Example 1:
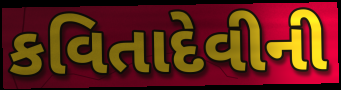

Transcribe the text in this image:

કવિતાદેવીની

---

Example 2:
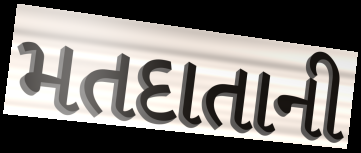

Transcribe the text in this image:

મતદાતાની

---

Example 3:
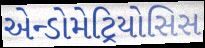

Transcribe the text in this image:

એન્ડોમેટ્રિયોસિસ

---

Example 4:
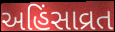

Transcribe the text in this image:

અહિંસાવ્રત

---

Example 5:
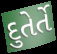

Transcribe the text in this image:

દુતેર્તે